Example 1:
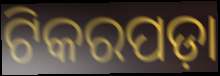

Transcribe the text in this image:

ଟିକରପଡ଼ା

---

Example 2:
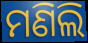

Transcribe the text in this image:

ମଣିଲି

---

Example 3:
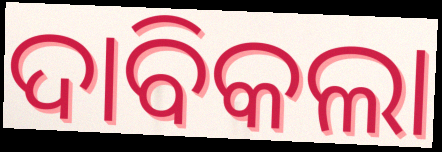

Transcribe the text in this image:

ଦାବିକଲା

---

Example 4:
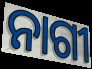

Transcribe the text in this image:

ନାଗୀ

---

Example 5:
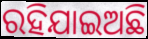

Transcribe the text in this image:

ରହିଯାଇଅଛି